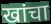
खांचा